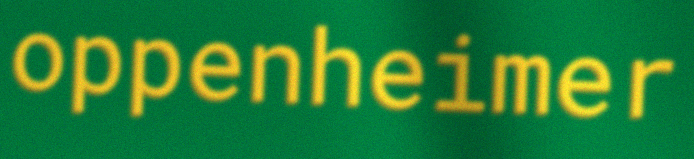
oppenheimer